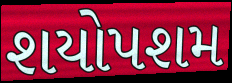
શયોપશમ